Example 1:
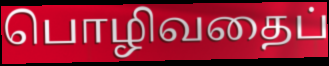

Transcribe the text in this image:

பொழிவதைப்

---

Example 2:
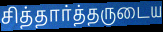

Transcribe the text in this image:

சித்தார்த்தருடைய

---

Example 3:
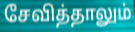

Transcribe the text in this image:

சேவித்தாலும்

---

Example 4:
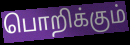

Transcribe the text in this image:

பொறிக்கும்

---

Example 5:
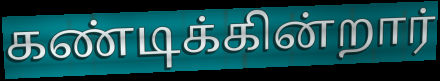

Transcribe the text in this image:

கண்டிக்கின்றார்